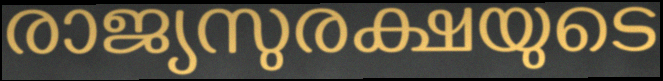
രാജ്യസുരക്ഷയുടെ